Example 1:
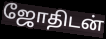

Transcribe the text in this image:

ஜோதிடன்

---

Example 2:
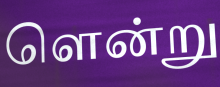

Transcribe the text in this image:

ளென்று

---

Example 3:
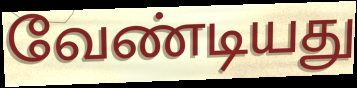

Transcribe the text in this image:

வேண்டியது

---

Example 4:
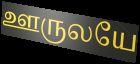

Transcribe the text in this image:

ஊருலயே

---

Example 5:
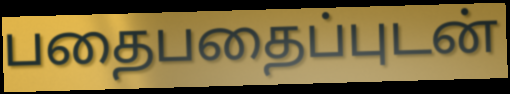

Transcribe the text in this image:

பதைபதைப்புடன்